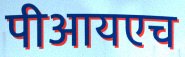
पीआयएच